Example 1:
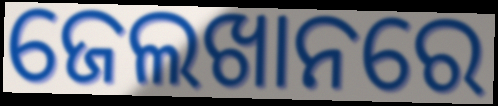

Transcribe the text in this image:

ଜେଲଖାନରେ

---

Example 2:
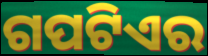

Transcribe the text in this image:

ଗପଟିଏର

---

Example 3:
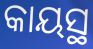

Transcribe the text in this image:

କାୟସ୍ଥ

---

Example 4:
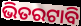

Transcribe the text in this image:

ଭିତରଟାବି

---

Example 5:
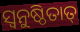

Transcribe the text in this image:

ସ୍ଵନୁଷ୍ଠିତାତ୍